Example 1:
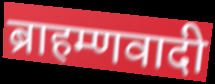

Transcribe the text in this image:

ब्राहम्णवादी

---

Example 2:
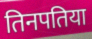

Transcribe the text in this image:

तिनपतिया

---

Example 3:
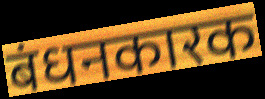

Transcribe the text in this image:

बंधनकारक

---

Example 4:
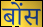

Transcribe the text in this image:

बोंस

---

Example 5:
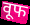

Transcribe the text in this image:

वूफ